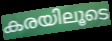
കരയിലൂടെ